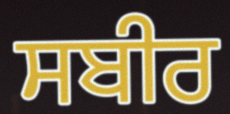
ਸਬੀਰ